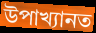
উপাখ্যানত